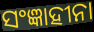
ସଂଜ୍ଞାହୀନା